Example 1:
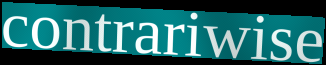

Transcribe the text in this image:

contrariwise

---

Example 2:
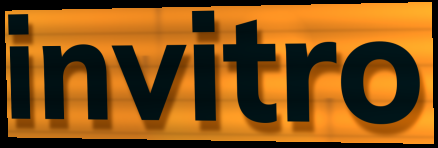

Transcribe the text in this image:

invitro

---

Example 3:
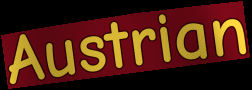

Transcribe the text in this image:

Austrian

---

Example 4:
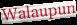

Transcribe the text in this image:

Walaupun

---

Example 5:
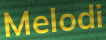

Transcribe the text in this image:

Melodi